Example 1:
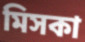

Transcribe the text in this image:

মিসকা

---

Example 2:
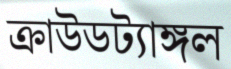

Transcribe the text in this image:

ক্রাউডট্যাঙ্গল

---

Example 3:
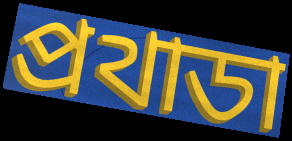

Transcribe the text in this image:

প্রথাডা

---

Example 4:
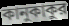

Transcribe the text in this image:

কানুকাকুর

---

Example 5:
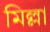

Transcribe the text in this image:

মিল্লা